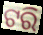
ଟରି